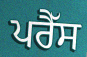
ਪਰੈੱਸ